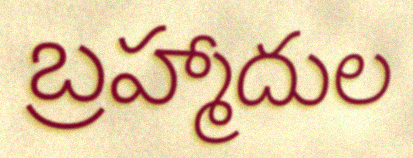
బ్రహ్మాదుల